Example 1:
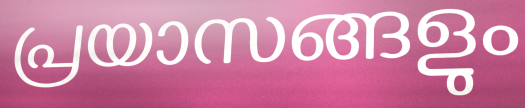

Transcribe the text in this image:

പ്രയാസങ്ങളും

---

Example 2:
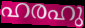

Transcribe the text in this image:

ഹരഹു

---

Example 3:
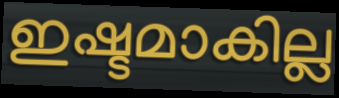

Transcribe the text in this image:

ഇഷ്ടമാകില്ല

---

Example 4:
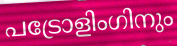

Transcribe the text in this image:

പട്രോളിംഗിനും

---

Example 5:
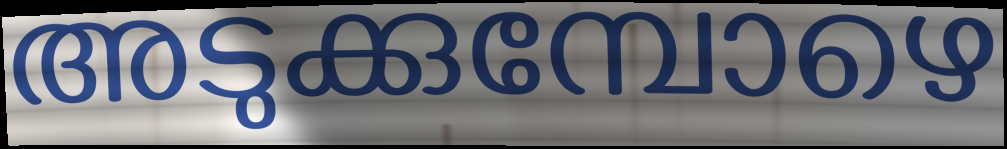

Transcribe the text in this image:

അടുക്കുമ്പോഴെ